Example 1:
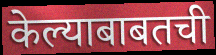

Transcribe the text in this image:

केल्याबाबतची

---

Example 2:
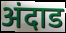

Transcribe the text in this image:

अंदाड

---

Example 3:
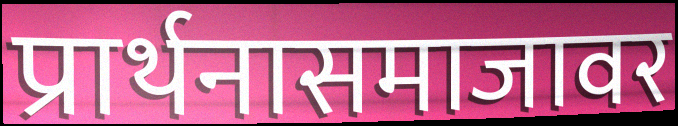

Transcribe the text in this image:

प्रार्थनासमाजावर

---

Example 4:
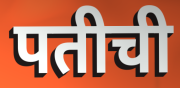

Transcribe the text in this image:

पतीची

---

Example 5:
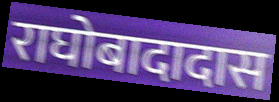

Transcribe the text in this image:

राघोबादादास